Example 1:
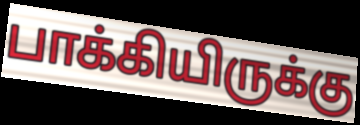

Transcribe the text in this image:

பாக்கியிருக்கு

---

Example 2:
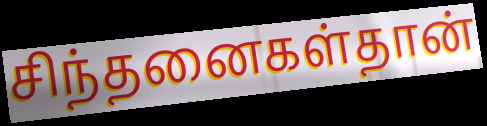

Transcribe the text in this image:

சிந்தனைகள்தான்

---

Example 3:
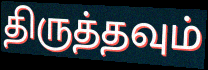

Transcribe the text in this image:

திருத்தவும்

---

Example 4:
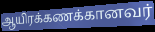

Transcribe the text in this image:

ஆயிரக்கணக்கானவர்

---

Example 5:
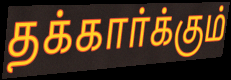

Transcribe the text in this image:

தக்கார்க்கும்